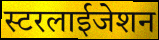
स्टरलाईजेशन